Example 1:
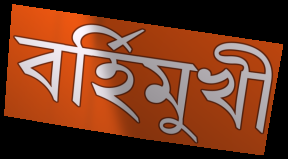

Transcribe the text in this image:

বৰ্হিমুখী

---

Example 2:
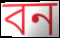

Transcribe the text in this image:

বন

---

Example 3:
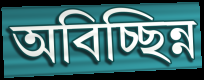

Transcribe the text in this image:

অবিচ্ছিন্ন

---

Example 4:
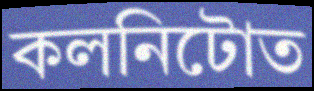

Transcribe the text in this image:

কলনিটোত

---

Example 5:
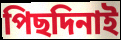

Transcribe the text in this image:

পিছদিনাই